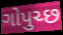
ગોપુચ્છ